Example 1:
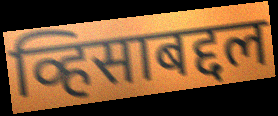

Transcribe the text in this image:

व्हिसाबद्दल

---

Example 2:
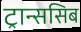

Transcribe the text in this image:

ट्रान्ससिब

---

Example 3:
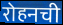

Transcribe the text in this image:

रोहनची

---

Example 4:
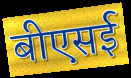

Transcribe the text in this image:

बीएसई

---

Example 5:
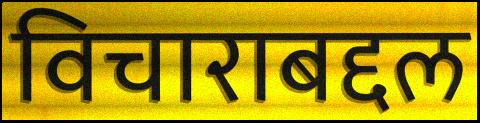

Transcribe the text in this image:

विचाराबद्दल